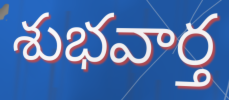
శుభవార్త